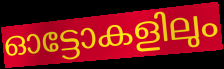
ഓട്ടോകളിലും